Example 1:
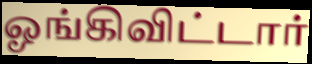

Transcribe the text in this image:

ஓங்கிவிட்டார்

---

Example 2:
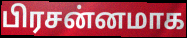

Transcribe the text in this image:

பிரசன்னமாக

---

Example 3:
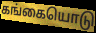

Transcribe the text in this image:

கங்கையொடு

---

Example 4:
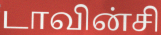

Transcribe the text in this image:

டாவின்சி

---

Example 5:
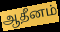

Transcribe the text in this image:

ஆதீனம்